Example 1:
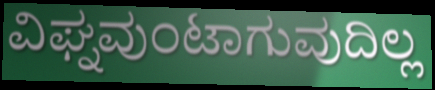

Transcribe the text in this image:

ವಿಘ್ನವುಂಟಾಗುವುದಿಲ್ಲ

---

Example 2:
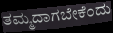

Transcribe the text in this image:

ತಮ್ಮದಾಗಬೇಕೆಂದು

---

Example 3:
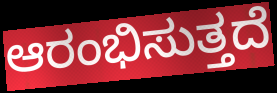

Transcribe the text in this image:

ಆರಂಭಿಸುತ್ತದೆ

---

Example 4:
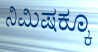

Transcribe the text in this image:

ನಿಮಿಷಕ್ಕೂ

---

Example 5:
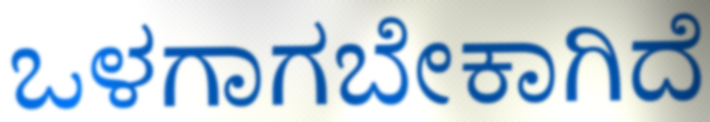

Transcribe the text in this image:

ಒಳಗಾಗಬೇಕಾಗಿದೆ